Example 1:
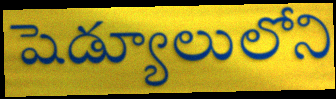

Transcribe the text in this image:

షెడ్యూలులోని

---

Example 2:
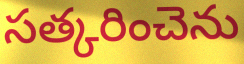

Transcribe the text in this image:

సత్కరించెను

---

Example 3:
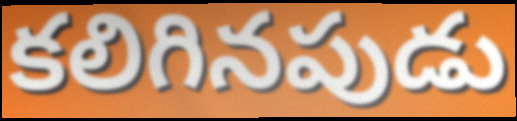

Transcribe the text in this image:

కలిగినపుడు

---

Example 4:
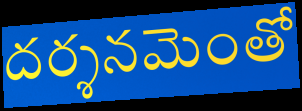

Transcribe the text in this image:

దర్శనమెంతో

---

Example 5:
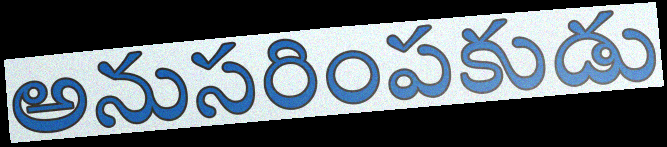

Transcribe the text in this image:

అనుసరింపకుడు